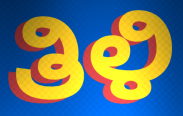
ತಿಳಿ